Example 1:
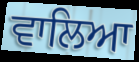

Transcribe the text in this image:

ਵਾਲਿਆ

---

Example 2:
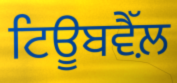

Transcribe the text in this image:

ਟਿਊਬਵੈੱਲ਼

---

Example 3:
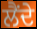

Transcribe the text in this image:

ਲੈਂਦੇ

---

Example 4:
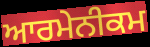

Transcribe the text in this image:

ਆਰਮੇਨੀਕਮ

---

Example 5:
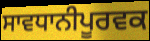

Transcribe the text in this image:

ਸਾਵਧਾਨੀਪੂਰਵਕ